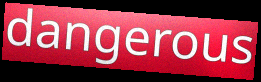
dangerous